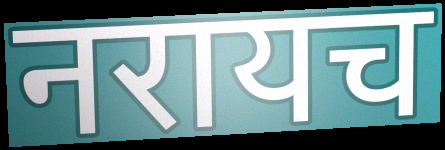
नरायच